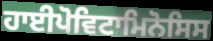
ਹਾਈਪੋਵਿਟਾਮਿਨੋਸਿਸ